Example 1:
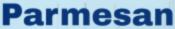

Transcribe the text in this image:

Parmesan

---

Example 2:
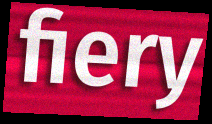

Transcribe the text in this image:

fiery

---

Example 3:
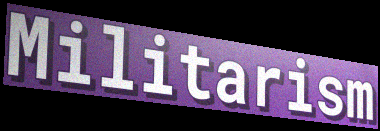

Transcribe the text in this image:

Militarism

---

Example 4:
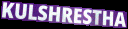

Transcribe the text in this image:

KULSHRESTHA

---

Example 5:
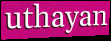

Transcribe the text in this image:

uthayan